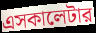
এসকালেটার